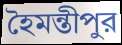
হৈমন্তীপুর